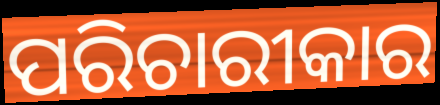
ପରିଚାରୀକାର